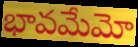
భావమేమో